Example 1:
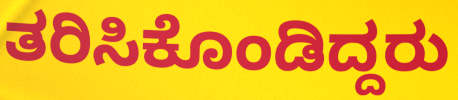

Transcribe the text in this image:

ತರಿಸಿಕೊಂಡಿದ್ದರು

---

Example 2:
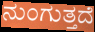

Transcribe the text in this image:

ನುಂಗುತ್ತದೆ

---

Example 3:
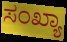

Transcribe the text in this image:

ಸಂಖ್ಯಾ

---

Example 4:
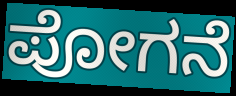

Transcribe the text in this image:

ಪೋಗನೆ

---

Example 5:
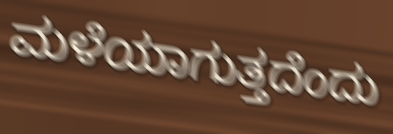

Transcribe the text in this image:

ಮಳೆಯಾಗುತ್ತದೆಂದು